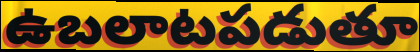
ఉబలాటపడుతూ